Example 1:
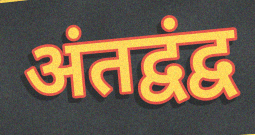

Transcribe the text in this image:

अंतद्वंद्व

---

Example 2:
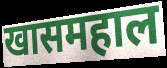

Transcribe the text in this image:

खासमहाल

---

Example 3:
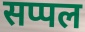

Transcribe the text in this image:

सप्पल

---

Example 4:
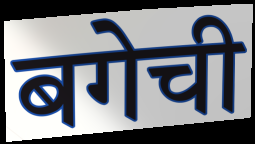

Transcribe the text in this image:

बगेची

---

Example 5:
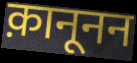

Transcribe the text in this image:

क़ानूनन